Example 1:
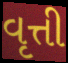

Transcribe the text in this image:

વૃત્તી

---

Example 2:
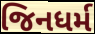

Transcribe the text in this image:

જિનધર્મ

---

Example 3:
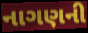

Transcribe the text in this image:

નાગણની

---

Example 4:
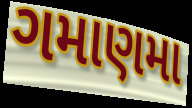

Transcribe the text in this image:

ગમાણમા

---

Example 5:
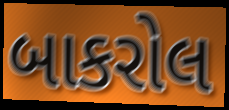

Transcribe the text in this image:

બાકરોલ